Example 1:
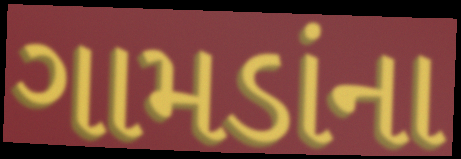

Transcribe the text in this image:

ગામડાંના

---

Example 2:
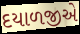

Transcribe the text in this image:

દયાળજીએ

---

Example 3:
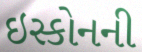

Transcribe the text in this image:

ઇસ્કોનની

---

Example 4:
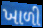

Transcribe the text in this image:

ખાળી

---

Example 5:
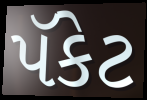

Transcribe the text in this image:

પૅકેટ